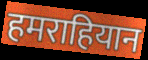
हमराहियान